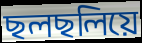
ছলছলিয়ে